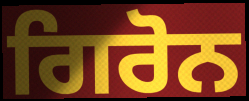
ਗਿਰੋਨ